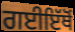
ਗਈਇੱਥੋਂ